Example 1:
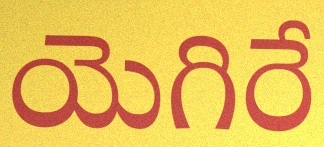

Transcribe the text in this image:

యెగిరే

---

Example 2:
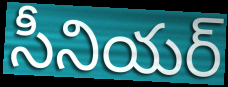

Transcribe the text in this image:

సీనియర్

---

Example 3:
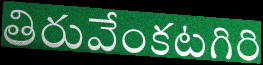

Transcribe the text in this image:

తిరువేంకటగిరి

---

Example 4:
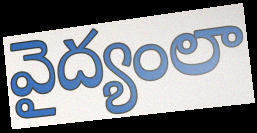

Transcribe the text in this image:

వైద్యంలా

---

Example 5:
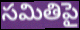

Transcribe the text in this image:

సమితిపై